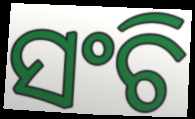
ସଂଚି